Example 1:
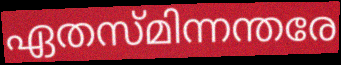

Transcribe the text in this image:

ഏതസ്മിന്നന്തരേ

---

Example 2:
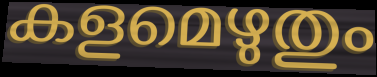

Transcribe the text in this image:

കളമെഴുതും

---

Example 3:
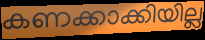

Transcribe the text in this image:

കണക്കാക്കിയില്ല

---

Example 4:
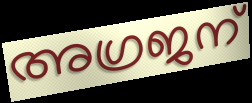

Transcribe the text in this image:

അഗ്രജന്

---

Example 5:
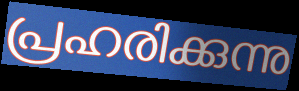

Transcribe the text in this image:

പ്രഹരിക്കുന്നു